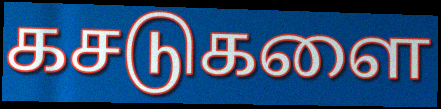
கசடுகளை